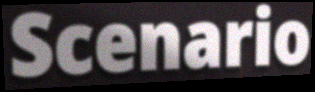
Scenario